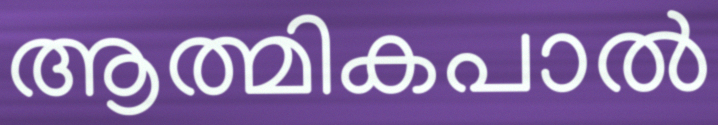
ആത്മികപാൽ